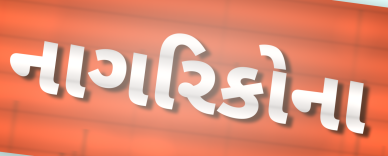
નાગરિકોના